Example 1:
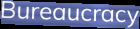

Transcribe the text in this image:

Bureaucracy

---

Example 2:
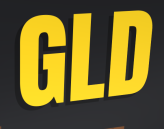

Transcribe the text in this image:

GLD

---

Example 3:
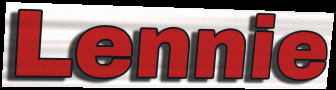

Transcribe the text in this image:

Lennie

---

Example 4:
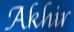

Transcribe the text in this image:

Akhir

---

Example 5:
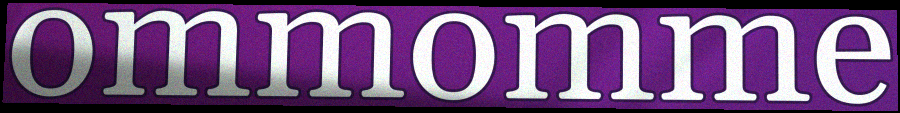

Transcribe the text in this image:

ommomme